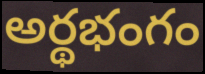
అర్థభంగం